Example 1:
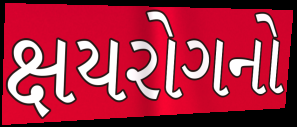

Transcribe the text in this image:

ક્ષયરોગનો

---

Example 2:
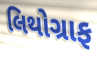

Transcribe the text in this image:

લિથોગ્રાફ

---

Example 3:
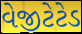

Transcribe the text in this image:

વેજીટેટેડ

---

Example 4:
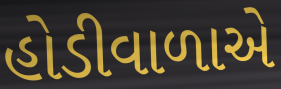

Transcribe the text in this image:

હોડીવાળાએ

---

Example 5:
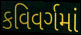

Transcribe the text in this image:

કવિવર્ગમાં